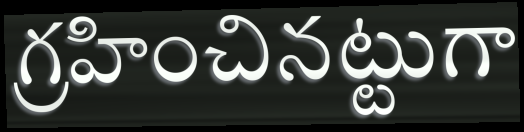
గ్రహించినట్టుగా